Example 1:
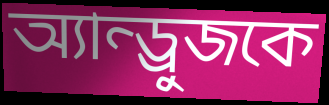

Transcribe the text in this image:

অ্যান্ড্রুজকে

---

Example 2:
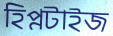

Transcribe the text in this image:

হিপ্নটাইজ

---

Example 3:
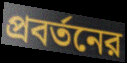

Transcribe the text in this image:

প্রবর্তনের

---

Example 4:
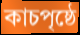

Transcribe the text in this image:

কাচপৃষ্ঠে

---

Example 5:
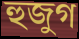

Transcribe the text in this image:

হুজুগ